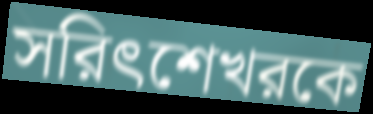
সরিৎশেখরকে